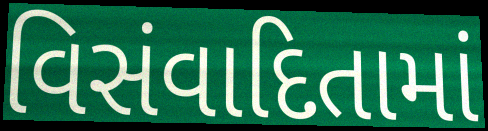
વિસંવાદિતામાં